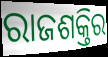
ରାଜଶକ୍ତିର